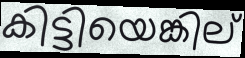
കിട്ടിയെങ്കില്